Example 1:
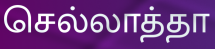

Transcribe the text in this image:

செல்லாத்தா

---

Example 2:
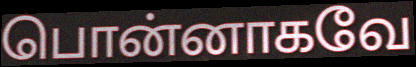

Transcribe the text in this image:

பொன்னாகவே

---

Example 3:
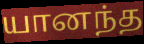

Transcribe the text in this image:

யானந்த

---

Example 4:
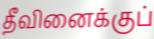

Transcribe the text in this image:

தீவினைக்குப்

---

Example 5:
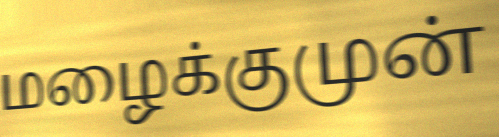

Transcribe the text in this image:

மழைக்குமுன்